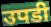
उपडी